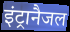
इंट्रानैजल